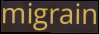
migrain